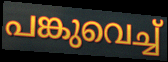
പങ്കുവെച്ച്